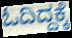
ಓದಿದ್ದಕ್ಕೆ